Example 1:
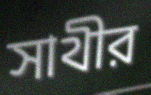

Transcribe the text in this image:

সাথীর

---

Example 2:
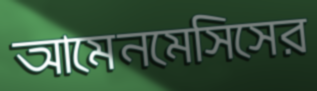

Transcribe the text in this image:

আমেনমেসিসের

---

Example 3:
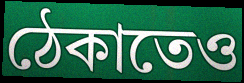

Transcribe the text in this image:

ঠেকাতেও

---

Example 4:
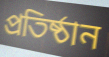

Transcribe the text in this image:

প্রতিষ্ঠান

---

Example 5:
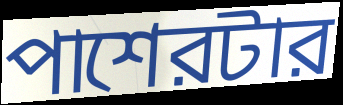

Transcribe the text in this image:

পাশেরটার